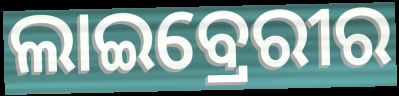
ଲାଇବ୍ରେରୀର